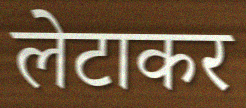
लेटाकर